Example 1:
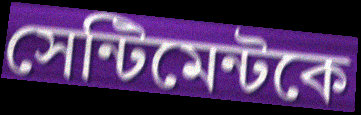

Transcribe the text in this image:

সেন্টিমেন্টকে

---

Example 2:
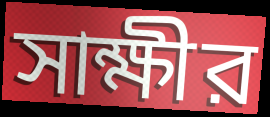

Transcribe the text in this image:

সাক্ষীর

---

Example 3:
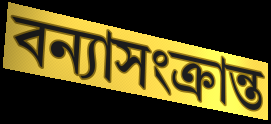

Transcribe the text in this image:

বন্যাসংক্রান্ত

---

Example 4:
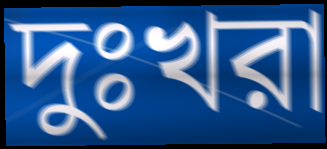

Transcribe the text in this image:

দুঃখরা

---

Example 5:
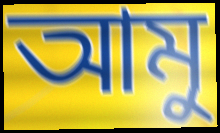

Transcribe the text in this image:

আমু